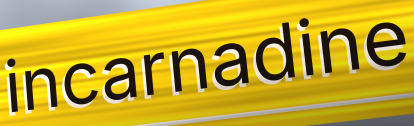
incarnadine